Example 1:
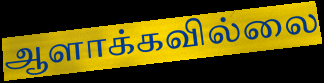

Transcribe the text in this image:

ஆளாக்கவில்லை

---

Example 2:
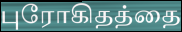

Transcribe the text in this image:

புரோகிதத்தை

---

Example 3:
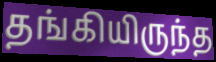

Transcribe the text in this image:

தங்கியிருந்த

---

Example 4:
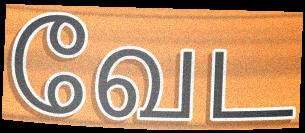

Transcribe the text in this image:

வேட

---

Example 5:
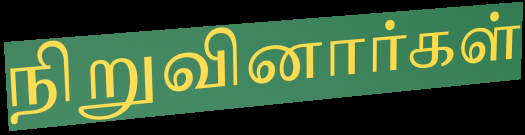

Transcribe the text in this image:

நிறுவினார்கள்